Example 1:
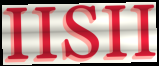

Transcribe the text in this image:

IISII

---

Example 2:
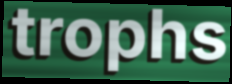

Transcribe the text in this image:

trophs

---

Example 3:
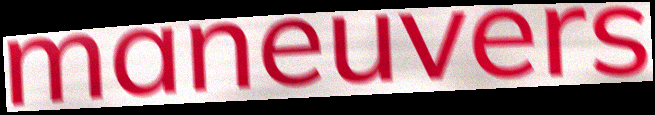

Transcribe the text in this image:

maneuvers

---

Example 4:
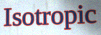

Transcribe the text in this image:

Isotropic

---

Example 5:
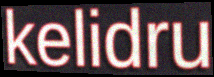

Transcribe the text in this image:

kelidru